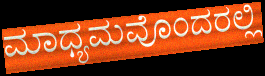
ಮಾಧ್ಯಮವೊಂದರಲ್ಲಿ